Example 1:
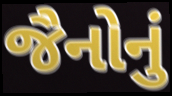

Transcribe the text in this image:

જૈનોનું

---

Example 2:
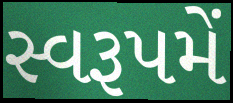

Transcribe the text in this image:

સ્વરૂપમેં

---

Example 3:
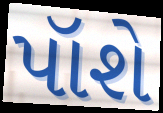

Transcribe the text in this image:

પૉશે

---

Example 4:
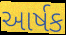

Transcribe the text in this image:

આર્ષક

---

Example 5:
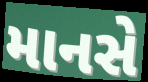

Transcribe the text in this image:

માનસે